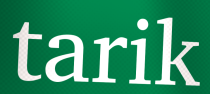
tarik